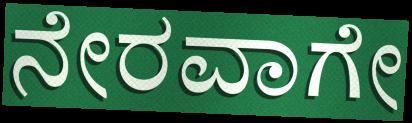
ನೇರವಾಗೇ